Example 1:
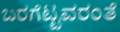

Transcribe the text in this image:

ಬರಗೆಟ್ಟವರಂತೆ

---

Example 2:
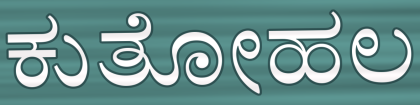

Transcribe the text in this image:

ಕುತೋಹಲ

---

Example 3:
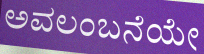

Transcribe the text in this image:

ಅವಲಂಬನೆಯೇ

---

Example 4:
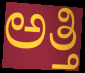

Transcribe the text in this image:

ಅತ್ತಿ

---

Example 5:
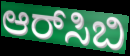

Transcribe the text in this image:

ಆರ್‌ಸಿಬಿ